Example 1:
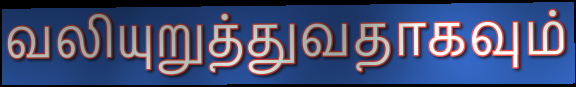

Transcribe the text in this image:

வலியுறுத்துவதாகவும்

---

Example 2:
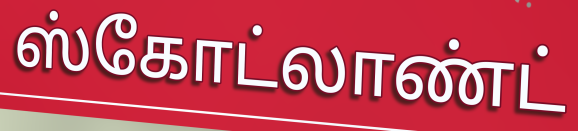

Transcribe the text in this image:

ஸ்கோட்லாண்ட்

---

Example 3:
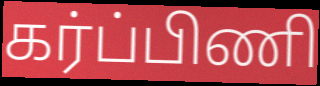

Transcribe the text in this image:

கர்ப்பிணி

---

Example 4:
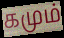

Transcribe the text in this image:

கமும்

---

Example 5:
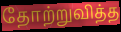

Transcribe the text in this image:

தோற்றுவித்த